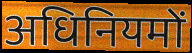
अधिनियमों